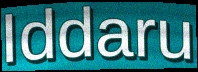
Iddaru